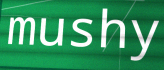
mushy